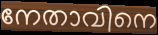
നേതാവിനെ